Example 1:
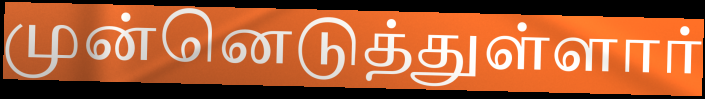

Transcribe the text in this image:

முன்னெடுத்துள்ளார்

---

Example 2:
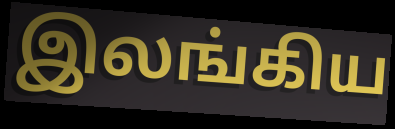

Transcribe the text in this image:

இலங்கிய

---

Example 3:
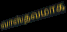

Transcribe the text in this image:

வாஸ்தவமாக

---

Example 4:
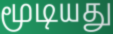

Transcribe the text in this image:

மூடியது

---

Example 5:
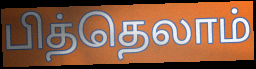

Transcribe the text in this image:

பித்தெலாம்